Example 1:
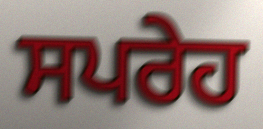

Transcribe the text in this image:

ਸਪਰੇਹ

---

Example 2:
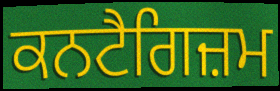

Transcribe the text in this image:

ਕਨਟੈਗਿਜ਼ਮ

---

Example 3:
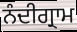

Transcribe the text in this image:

ਨੰਦੀਗ੍ਰਾਮ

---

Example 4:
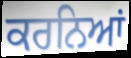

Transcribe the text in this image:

ਕਰਨਿਆਂ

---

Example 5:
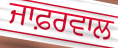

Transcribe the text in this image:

ਜਾਫ਼ਰਵਾਲ